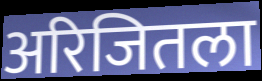
अरिजितला